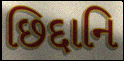
છિદ્દાનિ